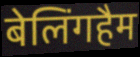
बेलिंगहैम